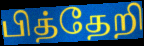
பித்தேறி